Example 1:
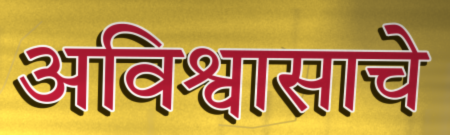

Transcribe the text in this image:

अविश्वासाचे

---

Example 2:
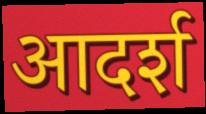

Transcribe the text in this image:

आदर्श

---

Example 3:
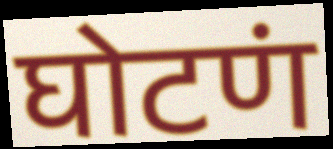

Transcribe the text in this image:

घोटणं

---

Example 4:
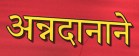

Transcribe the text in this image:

अन्नदानाने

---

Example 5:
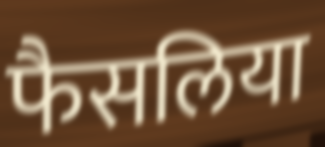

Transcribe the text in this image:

फैसलिया